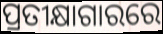
ପ୍ରତୀକ୍ଷାଗାରରେ